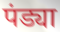
पंड्या